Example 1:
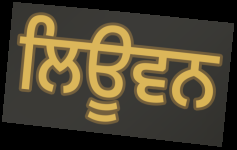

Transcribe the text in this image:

ਲਿਊਵਨ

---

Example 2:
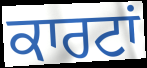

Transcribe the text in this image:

ਕਾਰਟਾਂ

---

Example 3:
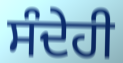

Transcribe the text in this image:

ਸੰਦੇਹੀ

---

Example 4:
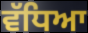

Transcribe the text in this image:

ਵੱਧਿਆ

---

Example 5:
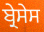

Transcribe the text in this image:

ਬ੍ਰੇਸੇਸ